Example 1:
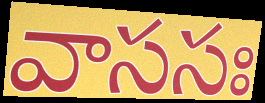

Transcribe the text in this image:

వాససః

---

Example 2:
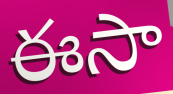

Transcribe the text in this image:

ఈసా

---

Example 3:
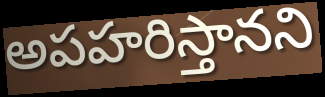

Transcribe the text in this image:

అపహరిస్తానని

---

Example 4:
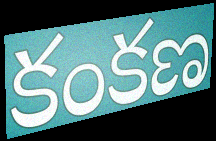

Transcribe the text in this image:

కంకణ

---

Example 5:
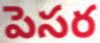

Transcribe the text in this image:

పెసర